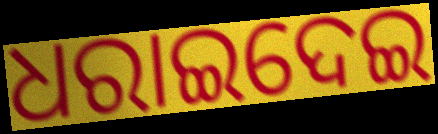
ଧରାଇଦେଇ